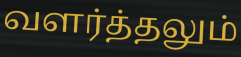
வளர்த்தலும்